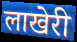
लाखेरी